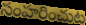
సంహరించుట